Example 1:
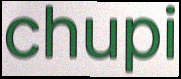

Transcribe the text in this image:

chupi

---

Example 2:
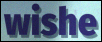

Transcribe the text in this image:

wishe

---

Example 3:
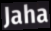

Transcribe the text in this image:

Jaha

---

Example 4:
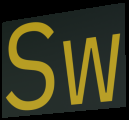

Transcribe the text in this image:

Sw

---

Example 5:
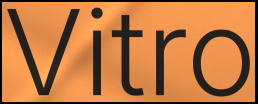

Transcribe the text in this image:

Vitro